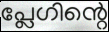
പ്ലേഗിന്റെ